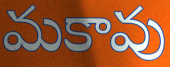
మకావు